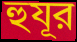
হুযূর